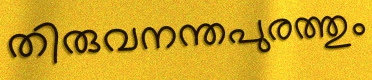
തിരുവനന്തപുരത്തും